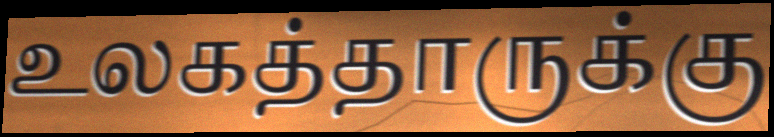
உலகத்தாருக்கு